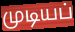
முடியப்